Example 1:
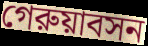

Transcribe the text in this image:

গেরুয়াবসন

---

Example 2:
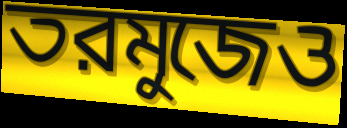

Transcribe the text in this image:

তরমুজেও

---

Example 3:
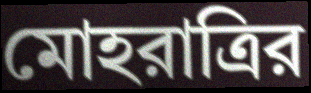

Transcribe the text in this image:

মোহরাত্রির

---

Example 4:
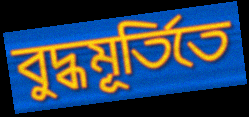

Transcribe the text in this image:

বুদ্ধমূর্তিতে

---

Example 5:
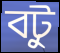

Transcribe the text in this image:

বটু